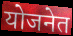
योजनेत